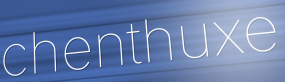
chenthuxe